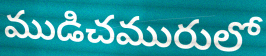
ముడిచమురులో